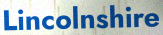
Lincolnshire